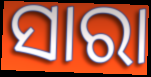
ସାରା